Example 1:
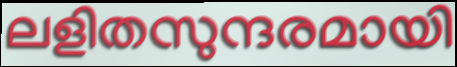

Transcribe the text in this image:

ലളിതസുന്ദരമായി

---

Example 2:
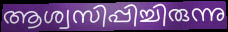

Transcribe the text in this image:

ആശ്വസിപ്പിച്ചിരുന്നു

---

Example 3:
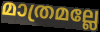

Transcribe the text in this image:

മാത്രമല്ലേ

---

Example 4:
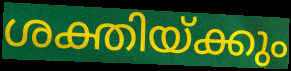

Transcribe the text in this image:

ശക്തിയ്ക്കും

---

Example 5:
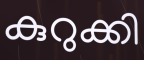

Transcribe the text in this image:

കുറുക്കി